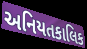
અનિયતકાલિક